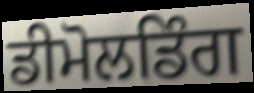
ਡੀਮੋਲਡਿੰਗ